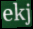
ekj